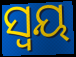
ସ୍ୱୟ